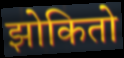
झोकितो